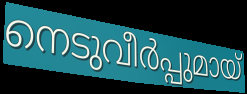
നെടുവീർപ്പുമായ്